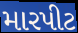
મારપીટ